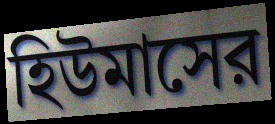
হিউমাসের